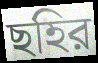
ছহির